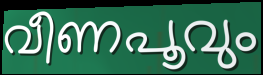
വീണപൂവും